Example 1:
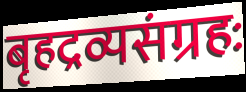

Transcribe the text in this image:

बृहद्रव्यसंग्रहः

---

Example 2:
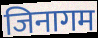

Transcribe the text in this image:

जिनागम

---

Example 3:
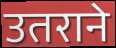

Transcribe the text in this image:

उतराने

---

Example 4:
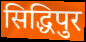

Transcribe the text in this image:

सिद्धिपुर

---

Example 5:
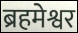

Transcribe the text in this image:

ब्रहमेश्वर